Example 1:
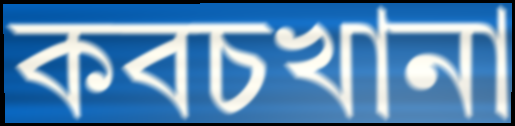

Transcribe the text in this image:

কবচখানা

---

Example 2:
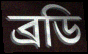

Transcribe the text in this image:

ব্রডি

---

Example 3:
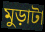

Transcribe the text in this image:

মুড়াটা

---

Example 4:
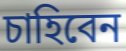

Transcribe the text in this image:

চাহিবেন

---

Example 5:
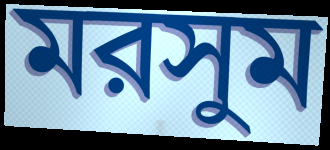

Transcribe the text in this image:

মরসুম